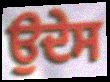
ਉਦੇਸ